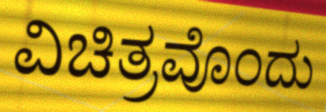
ವಿಚಿತ್ರವೊಂದು